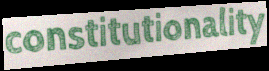
constitutionality